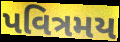
પવિત્રમય